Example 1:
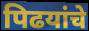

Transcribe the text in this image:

पिढयांचे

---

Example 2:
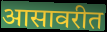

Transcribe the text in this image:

आसावरीत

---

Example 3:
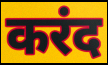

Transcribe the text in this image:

करंद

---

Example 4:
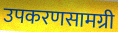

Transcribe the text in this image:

उपकरणसामग्री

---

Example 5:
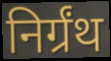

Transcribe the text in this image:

निर्ग्रंथ